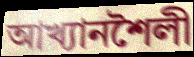
আখ্যানশৈলী